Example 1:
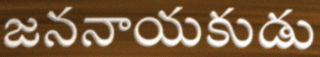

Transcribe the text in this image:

జననాయకుడు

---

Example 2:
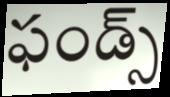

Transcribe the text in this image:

ఫండ్స్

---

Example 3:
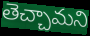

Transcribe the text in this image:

తెచ్చామని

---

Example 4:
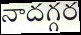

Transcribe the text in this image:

నాదగ్గర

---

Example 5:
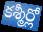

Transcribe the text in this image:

కశ్మీర్లో